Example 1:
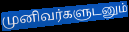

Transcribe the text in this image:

முனிவர்களுடனும்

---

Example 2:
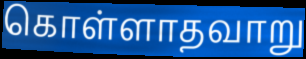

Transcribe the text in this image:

கொள்ளாதவாறு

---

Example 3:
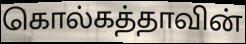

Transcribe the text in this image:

கொல்கத்தாவின்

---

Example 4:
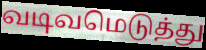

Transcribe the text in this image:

வடிவமெடுத்து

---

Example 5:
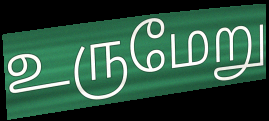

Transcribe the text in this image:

உருமேறு